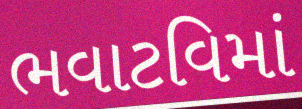
ભવાટવિમાં